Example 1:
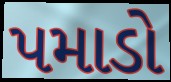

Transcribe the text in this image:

પમાડો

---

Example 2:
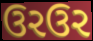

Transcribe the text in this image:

ઉરઉર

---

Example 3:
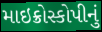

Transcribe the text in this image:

માઇક્રોસ્કોપીનું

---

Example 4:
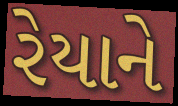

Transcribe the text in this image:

રેયાને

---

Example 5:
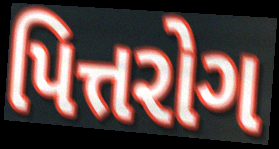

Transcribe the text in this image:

પિત્તરોગ